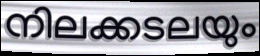
നിലക്കടലയും